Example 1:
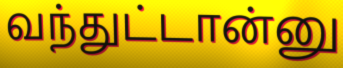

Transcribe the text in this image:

வந்துட்டான்னு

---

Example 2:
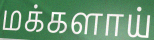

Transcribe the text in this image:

மக்களாய்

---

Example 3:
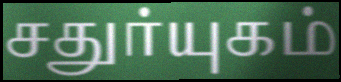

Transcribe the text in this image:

சதுர்யுகம்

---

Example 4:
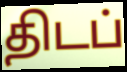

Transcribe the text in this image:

திடப்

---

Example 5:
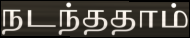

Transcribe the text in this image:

நடந்ததாம்